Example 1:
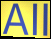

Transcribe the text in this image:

All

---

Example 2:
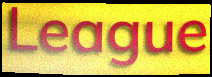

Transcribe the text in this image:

League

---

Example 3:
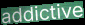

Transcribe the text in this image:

addictive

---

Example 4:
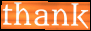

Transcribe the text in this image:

thank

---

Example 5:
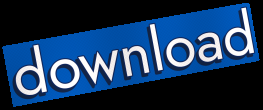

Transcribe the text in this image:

download